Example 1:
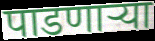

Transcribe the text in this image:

पाडणाऱ्या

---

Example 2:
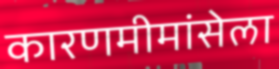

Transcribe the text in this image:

कारणमीमांसेला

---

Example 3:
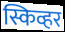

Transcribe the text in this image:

स्किव्हर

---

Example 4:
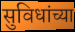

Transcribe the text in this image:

सुविधांच्या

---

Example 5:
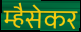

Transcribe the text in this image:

म्हैसेकर